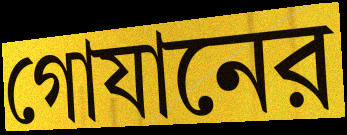
গোযানের